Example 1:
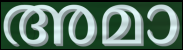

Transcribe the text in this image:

അമാ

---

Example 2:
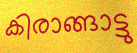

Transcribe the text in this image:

കിരാങ്ങാട്ടു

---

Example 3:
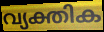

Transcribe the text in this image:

വ്യക്തിക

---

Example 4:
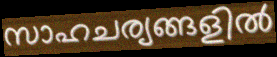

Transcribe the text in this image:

സാഹചര്യങ്ങളിൽ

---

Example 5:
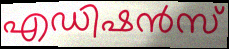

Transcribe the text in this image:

എഡിഷൻസ്